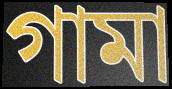
গামা